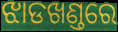
ଝାଡଖଣ୍ଡରେ